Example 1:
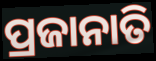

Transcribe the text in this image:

ପ୍ରଜାନାତି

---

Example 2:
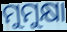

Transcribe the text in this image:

ମୁମୁକ୍ଷା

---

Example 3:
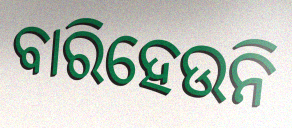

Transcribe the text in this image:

ବାରିହେଉନି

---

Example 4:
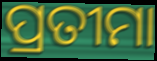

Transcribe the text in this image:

ପ୍ରତୀମା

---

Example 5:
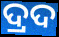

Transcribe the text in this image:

ଦ୍ରଦ